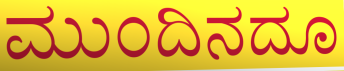
ಮುಂದಿನದೂ